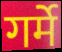
गर्मे